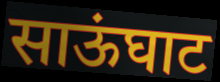
साऊंघाट